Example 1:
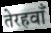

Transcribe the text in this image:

तेरहवाँ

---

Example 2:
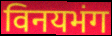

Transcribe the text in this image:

विनयभंग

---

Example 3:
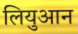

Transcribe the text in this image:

लियुआन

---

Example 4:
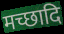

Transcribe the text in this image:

मच्छादि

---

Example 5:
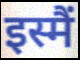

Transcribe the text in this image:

इस्मैं